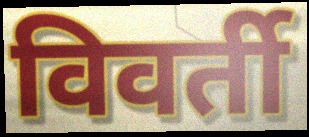
विवर्ती